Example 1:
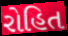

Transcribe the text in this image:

રોહિત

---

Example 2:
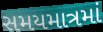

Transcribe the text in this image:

સમયમાત્રમાં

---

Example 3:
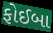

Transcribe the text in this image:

ફોઈબા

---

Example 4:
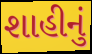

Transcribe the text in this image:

શાહીનું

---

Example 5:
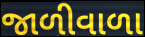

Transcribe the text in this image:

જાળીવાળા